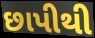
છાપીથી